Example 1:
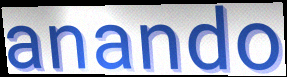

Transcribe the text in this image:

anando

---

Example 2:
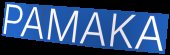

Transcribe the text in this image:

PAMAKA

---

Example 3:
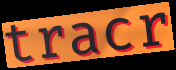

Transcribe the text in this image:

tracr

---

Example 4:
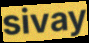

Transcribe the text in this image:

sivay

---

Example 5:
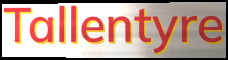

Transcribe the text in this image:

Tallentyre